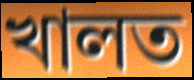
খালত